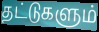
தட்டுகளும்